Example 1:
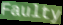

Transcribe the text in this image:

Faulty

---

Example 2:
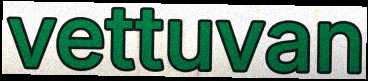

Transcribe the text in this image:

vettuvan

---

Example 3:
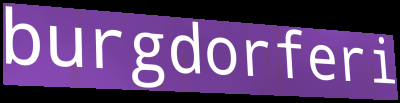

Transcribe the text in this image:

burgdorferi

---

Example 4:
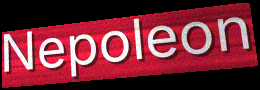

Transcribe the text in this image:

Nepoleon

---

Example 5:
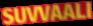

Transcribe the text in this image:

SUVVAALI